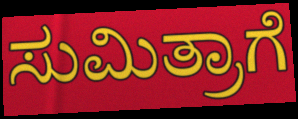
ಸುಮಿತ್ರಾಗೆ